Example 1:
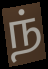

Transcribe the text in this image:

ந்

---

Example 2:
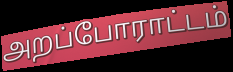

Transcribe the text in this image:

அறப்போராட்டம்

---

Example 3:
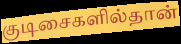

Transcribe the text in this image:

குடிசைகளில்தான்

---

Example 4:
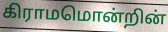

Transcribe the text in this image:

கிராமமொன்றின்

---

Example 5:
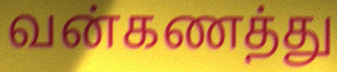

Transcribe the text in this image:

வன்கணத்து